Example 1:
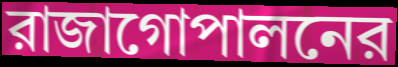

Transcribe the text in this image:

রাজাগোপালনের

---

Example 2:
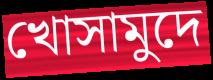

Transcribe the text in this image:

খোসামুদে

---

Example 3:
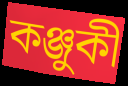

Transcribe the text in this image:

কঞ্জুকী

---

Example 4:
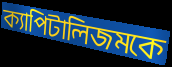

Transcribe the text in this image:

ক্যাপিটালিজমকে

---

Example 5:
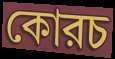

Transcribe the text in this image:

কোরচ